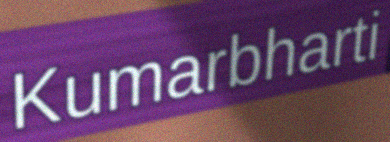
Kumarbharti